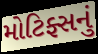
મોટિફ્સનું